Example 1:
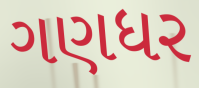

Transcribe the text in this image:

ગણધર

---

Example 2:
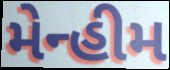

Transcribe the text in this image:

મેન્હીમ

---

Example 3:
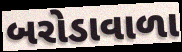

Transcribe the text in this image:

બરોડાવાળા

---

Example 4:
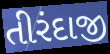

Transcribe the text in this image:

તીરંદાજી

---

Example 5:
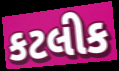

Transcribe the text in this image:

કટલીક